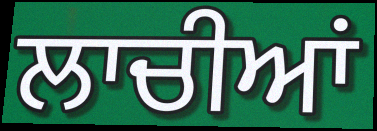
ਲਾਚੀਆਂ